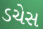
ડચેસ